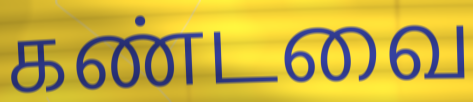
கண்டவை